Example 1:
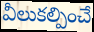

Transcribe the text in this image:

వీలుకల్పించే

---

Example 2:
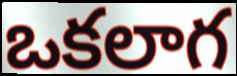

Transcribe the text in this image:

ఒకలాగ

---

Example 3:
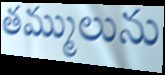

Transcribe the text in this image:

తమ్ములును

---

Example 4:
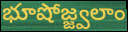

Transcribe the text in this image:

భూషోజ్జ్వలాం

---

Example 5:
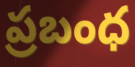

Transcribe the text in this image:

ప్రబంధ